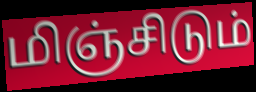
மிஞ்சிடும்